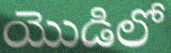
యొడిలో